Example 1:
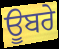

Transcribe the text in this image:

ਊਬਰੇ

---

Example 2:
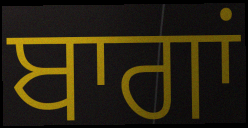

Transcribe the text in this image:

ਬਾਗਾਂ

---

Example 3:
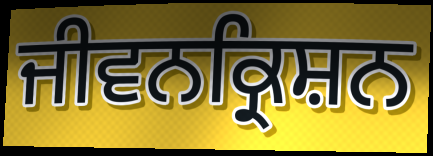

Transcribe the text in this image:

ਜੀਵਨਕ੍ਰਿਸ਼ਨ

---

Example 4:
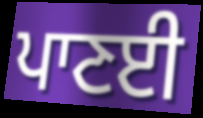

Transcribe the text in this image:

ਪਾਣਈ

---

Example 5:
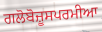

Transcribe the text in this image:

ਗਲੋਬੋਜ਼ੂਸਪਰਮੀਆ